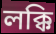
লক্কি